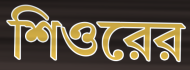
শিওরের